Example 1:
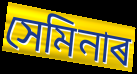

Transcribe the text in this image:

সেমিনাৰ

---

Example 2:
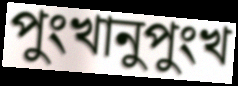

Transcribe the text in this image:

পুংখানুপুংখ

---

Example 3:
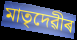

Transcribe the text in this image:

মাতৃদেৱীৰ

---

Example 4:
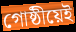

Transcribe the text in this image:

গোষ্ঠীয়েই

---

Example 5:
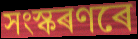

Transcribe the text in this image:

সংস্কৰণৰে